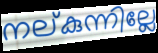
നല്കുന്നില്ലേ